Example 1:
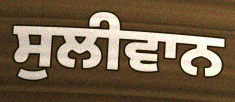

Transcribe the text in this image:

ਸੁਲੀਵਾਨ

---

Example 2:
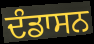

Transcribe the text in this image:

ਦੰਡਾਸਨ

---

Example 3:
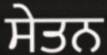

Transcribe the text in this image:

ਸੇਤਨ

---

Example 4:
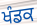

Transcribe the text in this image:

ਖੰਡਕ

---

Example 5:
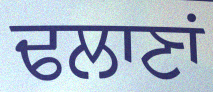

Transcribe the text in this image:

ਢਲਾਣਾਂ